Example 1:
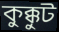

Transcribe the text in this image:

কুক্কুট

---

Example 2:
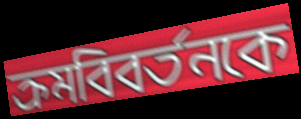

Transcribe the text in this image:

ক্রমবিবর্তনকে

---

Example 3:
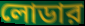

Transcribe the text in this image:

লোডার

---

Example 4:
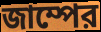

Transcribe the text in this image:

জাম্পের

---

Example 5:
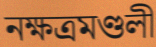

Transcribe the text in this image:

নক্ষত্রমণ্ডলী